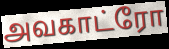
அவகாட்ரோ